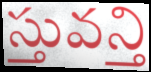
స్తువన్తి